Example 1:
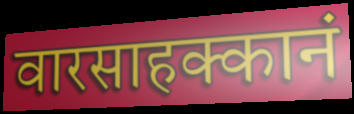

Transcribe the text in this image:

वारसाहक्कानं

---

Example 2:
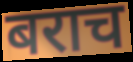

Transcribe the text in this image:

बराच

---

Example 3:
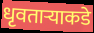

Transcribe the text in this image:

धृवतार्‍याकडे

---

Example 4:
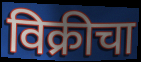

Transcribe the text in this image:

विक्रीचा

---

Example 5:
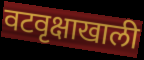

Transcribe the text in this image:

वटवृक्षाखाली